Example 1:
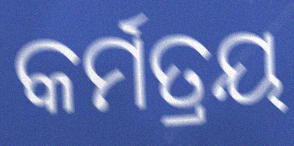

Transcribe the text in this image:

କର୍ମତ୍ରୟ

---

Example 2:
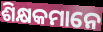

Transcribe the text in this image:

ଶିକ୍ଷକମାନେ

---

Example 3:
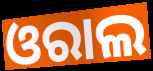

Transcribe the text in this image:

ଓରାଲ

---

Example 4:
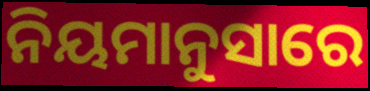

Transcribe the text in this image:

ନିୟମାନୁସାରେ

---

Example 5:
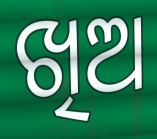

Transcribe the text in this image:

ଖିଅ